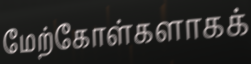
மேற்கோள்களாகக்